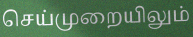
செய்முறையிலும்